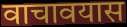
वाचावयास